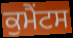
ਕੁਮੈਂਟਸ